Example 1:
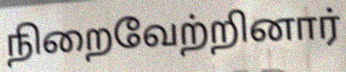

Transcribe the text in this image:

நிறைவேற்றினார்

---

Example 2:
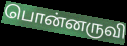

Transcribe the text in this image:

பொன்னருவி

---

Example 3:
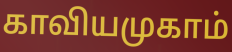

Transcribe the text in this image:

காவியமுகாம்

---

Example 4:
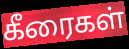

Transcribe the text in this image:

கீரைகள்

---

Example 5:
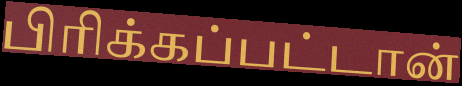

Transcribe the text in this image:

பிரிக்கப்பட்டான்